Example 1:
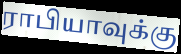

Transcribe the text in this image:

ராபியாவுக்கு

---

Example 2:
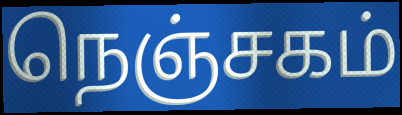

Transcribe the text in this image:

நெஞ்சகம்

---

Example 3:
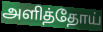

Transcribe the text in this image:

அளித்தோய்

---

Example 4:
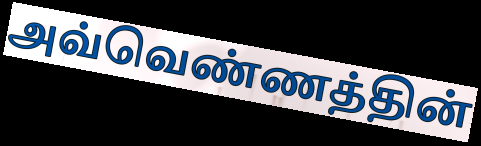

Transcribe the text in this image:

அவ்வெண்ணத்தின்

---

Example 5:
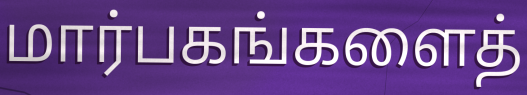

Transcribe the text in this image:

மார்பகங்களைத்